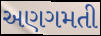
અણગમતી